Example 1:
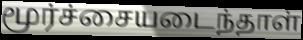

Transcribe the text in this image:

மூர்ச்சையடைந்தாள்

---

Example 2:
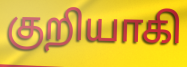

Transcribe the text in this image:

குறியாகி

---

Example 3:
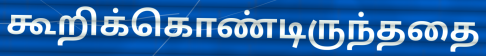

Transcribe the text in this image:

கூறிக்கொண்டிருந்ததை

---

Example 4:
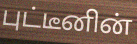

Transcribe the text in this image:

புட்டீனின்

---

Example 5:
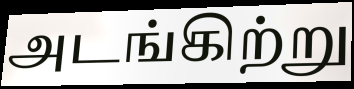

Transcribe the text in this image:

அடங்கிற்று